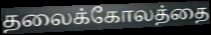
தலைக்கோலத்தை